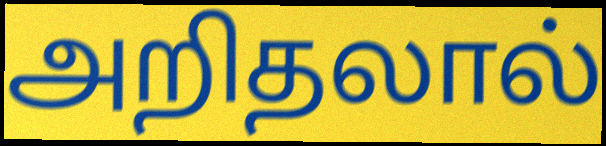
அறிதலால்